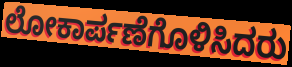
ಲೋಕಾರ್ಪಣೆಗೊಳಿಸಿದರು